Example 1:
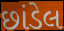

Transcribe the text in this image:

છાંડેલ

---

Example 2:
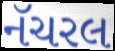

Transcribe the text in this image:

નૅચરલ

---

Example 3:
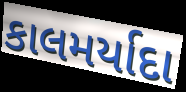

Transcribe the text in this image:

કાલમર્યાદા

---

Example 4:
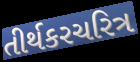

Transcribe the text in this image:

તીર્થકરચરિત્ર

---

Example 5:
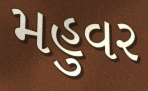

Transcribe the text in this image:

મહુવર